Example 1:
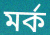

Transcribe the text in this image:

মর্ক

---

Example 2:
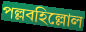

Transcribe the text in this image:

পল্লবহিল্লোল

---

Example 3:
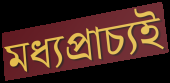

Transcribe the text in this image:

মধ্যপ্রাচ্যই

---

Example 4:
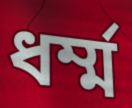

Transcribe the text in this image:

ধর্ম্ম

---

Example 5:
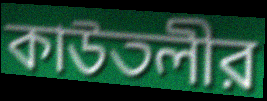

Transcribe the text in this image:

কাউতলীর